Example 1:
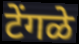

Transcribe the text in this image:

टेंगळे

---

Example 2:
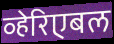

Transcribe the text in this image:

व्हेरिएबल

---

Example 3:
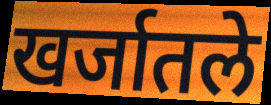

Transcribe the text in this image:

खर्जातले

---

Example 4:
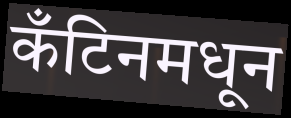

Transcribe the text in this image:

कँटिनमधून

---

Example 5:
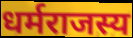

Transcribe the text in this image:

धर्मराजस्य